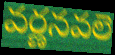
వర్ణనవలె